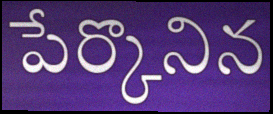
పేర్కొనిన